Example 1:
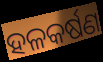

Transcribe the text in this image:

ହଳକର୍ଷଣ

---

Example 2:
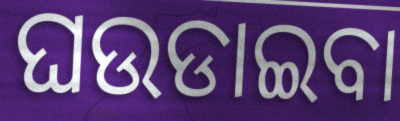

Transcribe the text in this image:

ଘଉଡାଇବା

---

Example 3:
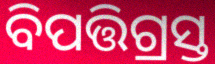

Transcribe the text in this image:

ବିପତ୍ତିଗ୍ରସ୍ତ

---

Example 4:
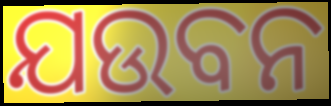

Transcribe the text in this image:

ଯଉବନ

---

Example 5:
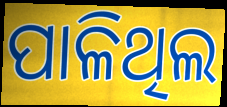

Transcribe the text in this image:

ପାଳିଥିଲ